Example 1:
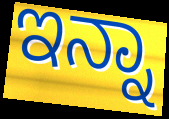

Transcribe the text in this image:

ಇನ್ನಾ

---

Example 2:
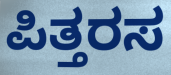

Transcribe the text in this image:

ಪಿತ್ತರಸ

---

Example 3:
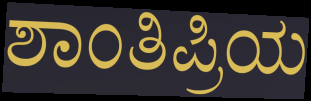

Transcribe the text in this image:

ಶಾಂತಿಪ್ರಿಯ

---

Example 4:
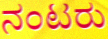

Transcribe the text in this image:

ನಂಟರು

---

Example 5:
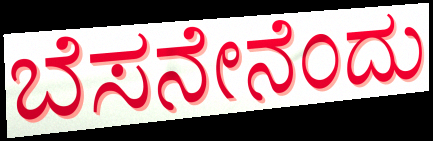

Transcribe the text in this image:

ಬೆಸನೇನೆಂದು